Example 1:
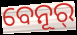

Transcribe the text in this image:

ବେନୂର୍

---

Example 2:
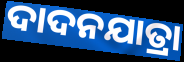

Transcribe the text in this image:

ଦାଦନଯାତ୍ରା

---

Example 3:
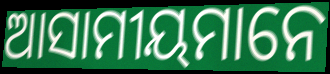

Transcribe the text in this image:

ଆସାମୀୟମାନେ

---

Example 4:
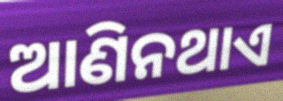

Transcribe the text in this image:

ଆଣିନଥାଏ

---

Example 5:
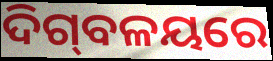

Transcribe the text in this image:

ଦିଗ୍‍ବଳୟରେ